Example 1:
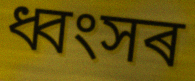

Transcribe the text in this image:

ধ্বংসৰ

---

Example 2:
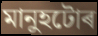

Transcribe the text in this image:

মানুহটোৰ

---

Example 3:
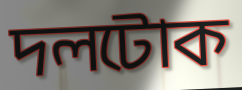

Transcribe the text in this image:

দলটোক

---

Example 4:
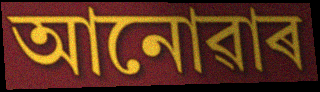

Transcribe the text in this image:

আনোৱাৰ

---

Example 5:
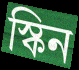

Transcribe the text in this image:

স্কিন